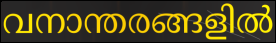
വനാന്തരങ്ങളിൽ